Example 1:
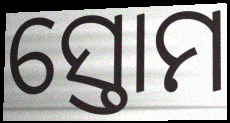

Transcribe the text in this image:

ସ୍ତୋମ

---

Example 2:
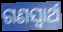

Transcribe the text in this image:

ଗଣସ୍ୱାର୍ଥ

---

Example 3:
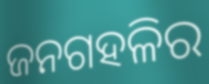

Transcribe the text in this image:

ଜନଗହଳିର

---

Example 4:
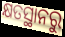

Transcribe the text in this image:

କ୍ଷତସ୍ଥାନରୁ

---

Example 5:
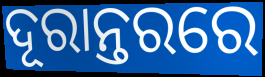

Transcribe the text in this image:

ଦୂରାନ୍ତରରେ